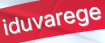
iduvarege